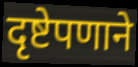
दृष्टेपणाने